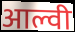
आल्वी